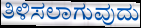
ತಿಳಿಸಲಾಗುವುದು